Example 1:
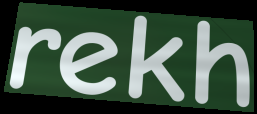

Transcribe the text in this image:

rekh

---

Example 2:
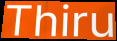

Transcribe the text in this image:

Thiru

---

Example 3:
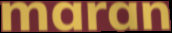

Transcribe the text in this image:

maran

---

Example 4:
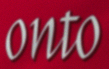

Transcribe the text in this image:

onto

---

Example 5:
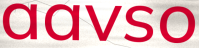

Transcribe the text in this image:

aavso